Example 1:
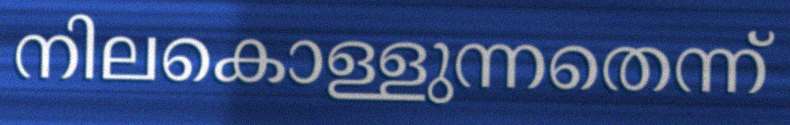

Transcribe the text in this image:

നിലകൊള്ളുന്നതെന്ന്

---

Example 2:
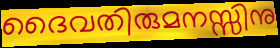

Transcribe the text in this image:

ദൈവതിരുമനസ്സിനു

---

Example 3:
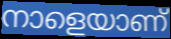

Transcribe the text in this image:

നാളെയാണ്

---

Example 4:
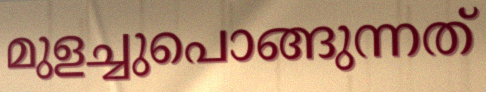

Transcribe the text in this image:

മുളച്ചുപൊങ്ങുന്നത്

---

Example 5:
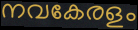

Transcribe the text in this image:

നവകേരളം